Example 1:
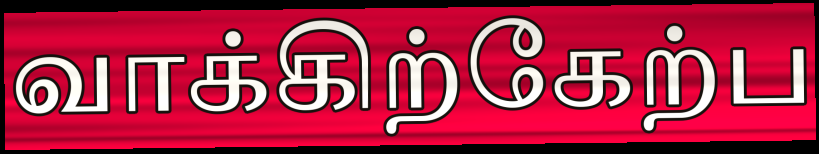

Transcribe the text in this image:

வாக்கிற்கேற்ப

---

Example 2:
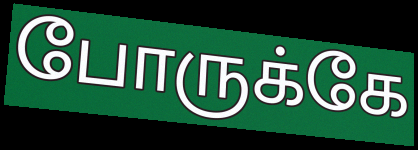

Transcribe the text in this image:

போருக்கே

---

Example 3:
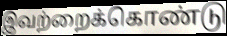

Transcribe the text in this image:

இவற்றைக்கொண்டு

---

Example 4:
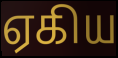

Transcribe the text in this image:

ஏகிய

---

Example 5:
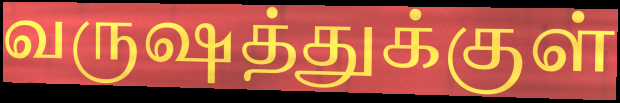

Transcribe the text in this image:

வருஷத்துக்குள்